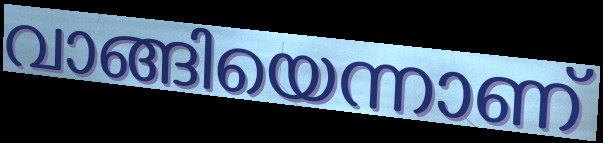
വാങ്ങിയെന്നാണ്